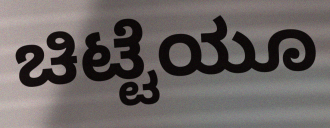
ಚಿಟ್ಟೆಯೂ